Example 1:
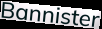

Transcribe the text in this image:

Bannister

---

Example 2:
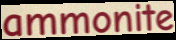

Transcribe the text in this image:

ammonite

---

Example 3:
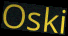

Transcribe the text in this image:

Oski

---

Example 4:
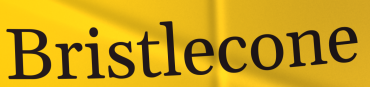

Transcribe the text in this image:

Bristlecone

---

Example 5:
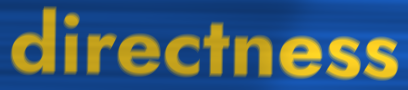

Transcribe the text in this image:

directness